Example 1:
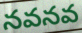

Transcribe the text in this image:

నవనవ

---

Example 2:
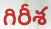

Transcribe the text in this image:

గిరీశ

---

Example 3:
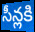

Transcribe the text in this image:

సీన్లకి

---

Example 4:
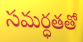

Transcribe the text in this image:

సమర్ధతతో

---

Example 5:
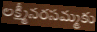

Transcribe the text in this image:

లక్ష్మీనరసమ్మకు